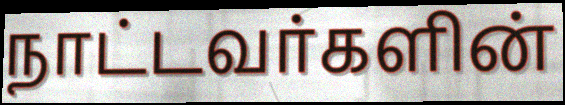
நாட்டவர்களின்